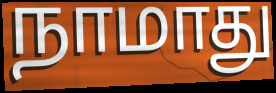
நாமாது